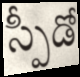
స్పీడో